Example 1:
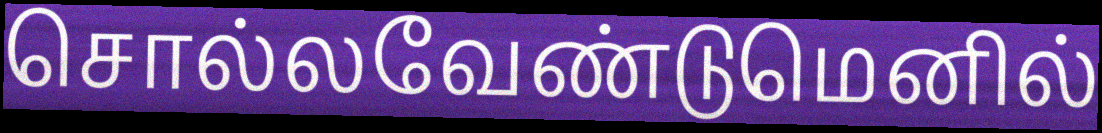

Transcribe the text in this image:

சொல்லவேண்டுமெனில்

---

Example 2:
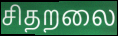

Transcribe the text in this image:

சிதறலை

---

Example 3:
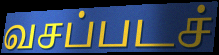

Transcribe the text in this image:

வசப்படச்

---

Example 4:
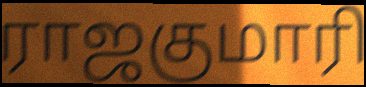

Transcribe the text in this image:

ராஜகுமாரி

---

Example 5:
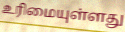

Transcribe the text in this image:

உரிமையுள்ளது